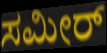
ಸಮೀರ್